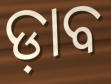
ଡ଼ାବ